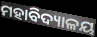
ମହାବିଦ୍ୟାଳୟ